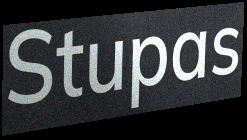
Stupas